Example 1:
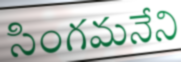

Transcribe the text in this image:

సింగమనేని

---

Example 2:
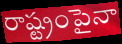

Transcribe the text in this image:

రాష్ట్రంపైనా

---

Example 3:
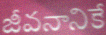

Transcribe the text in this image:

జీవనానికే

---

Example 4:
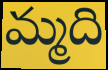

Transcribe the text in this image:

మ్మది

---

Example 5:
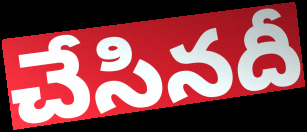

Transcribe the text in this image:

చేసినదీ